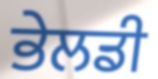
ਭੇਲਡੀ